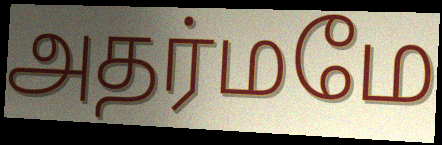
அதர்மமே